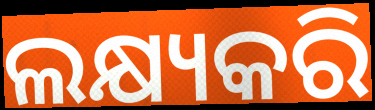
ଲକ୍ଷ୍ୟକରି